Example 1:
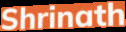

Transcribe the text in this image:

Shrinath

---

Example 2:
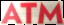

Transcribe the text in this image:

ATM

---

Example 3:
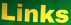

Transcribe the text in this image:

Links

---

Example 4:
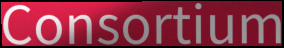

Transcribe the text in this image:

Consortium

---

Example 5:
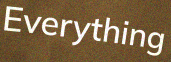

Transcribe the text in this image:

Everything